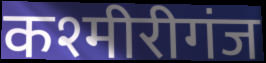
कश्मीरीगंज